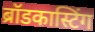
ब्रॉडकास्टिंग